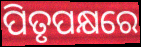
ପିତୃପକ୍ଷରେ